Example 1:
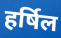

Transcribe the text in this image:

हर्षिल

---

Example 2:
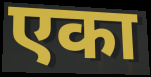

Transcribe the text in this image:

एका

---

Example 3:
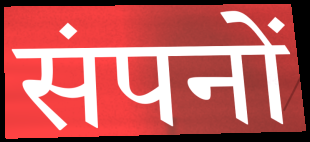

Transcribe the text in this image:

संपनों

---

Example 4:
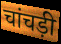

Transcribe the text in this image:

चांचड़ी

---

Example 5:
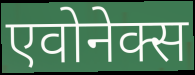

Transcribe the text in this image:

एवोनेक्स